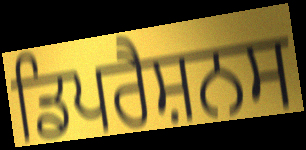
ਡਿਪਰੈਸ਼ਨਸ